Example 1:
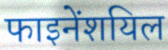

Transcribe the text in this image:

फाइनेंशयिल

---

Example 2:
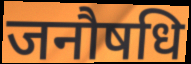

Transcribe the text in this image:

जनौषधि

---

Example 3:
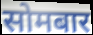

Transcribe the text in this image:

सोमबार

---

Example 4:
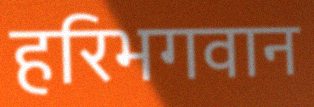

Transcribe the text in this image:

हरिभगवान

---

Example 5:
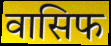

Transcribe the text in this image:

वासिफ